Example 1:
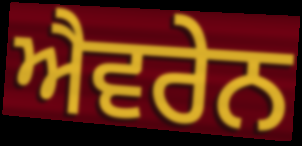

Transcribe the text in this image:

ਐਵਰੇਨ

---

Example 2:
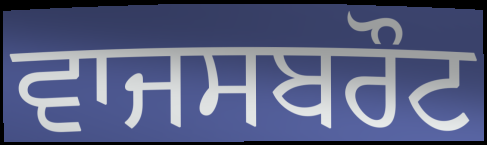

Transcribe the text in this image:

ਵਾਜਸਬਰੌਟ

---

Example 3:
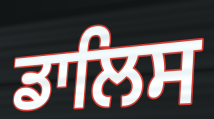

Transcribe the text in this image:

ਡਾਲਿਸ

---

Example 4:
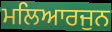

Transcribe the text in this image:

ਮਲਿਆਰਜੁਨ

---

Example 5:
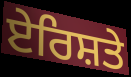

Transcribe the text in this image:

ਏਰਿਸ਼ਤੇ